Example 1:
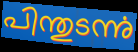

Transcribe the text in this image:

പിന്തുടൎന്നു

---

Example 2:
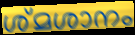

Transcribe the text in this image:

ശ്മശാനം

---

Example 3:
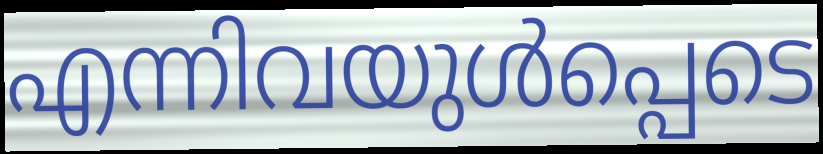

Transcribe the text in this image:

എന്നിവയുൾപ്പെടെ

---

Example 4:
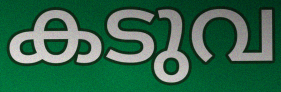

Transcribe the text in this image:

കടുവ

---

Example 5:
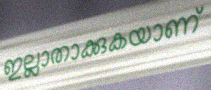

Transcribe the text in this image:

ഇല്ലാതാക്കുകയാണ്